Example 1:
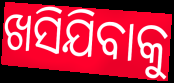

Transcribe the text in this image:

ଖସିଯିବାକୁ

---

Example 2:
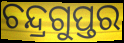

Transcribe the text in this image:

ଚନ୍ଦ୍ରଗୁପ୍ତର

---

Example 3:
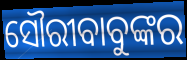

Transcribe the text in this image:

ସୌରୀବାବୁଙ୍କର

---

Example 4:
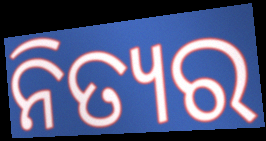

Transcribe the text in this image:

ନିତ୍ୟର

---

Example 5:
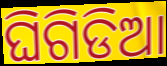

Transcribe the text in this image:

ଘିଗିଡିଆ